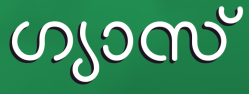
ഗ്യാസ്